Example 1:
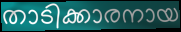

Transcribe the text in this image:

താടിക്കാരനായ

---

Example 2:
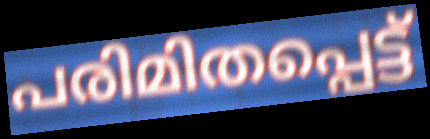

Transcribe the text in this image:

പരിമിതപ്പെട്ട്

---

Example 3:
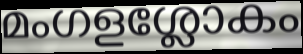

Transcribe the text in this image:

മംഗളശ്ലോകം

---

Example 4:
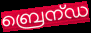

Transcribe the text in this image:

ബ്രെന്ഡ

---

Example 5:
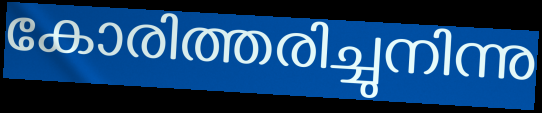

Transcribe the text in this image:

കോരിത്തരിച്ചുനിന്നു